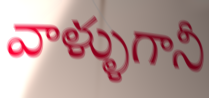
వాళ్ళుగానీ